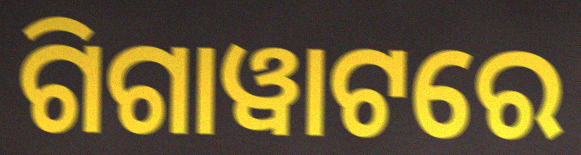
ଗିଗାୱାଟରେ